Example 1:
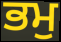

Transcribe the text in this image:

ਭਮੁ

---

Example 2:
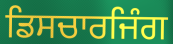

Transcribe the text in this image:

ਡਿਸਚਾਰਜਿੰਗ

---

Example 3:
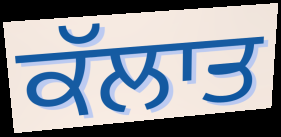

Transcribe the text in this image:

ਕੱਲਾਤ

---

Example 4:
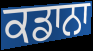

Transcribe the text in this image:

ਕਡਾਨਾ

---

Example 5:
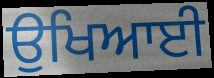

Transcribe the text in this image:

ਉਖਿਆਈ